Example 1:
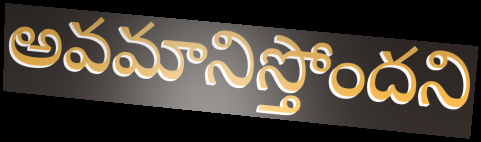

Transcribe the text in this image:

అవమానిస్తోందని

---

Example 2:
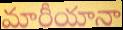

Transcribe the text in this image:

మారీయానా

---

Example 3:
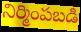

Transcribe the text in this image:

నిర్మింపబడి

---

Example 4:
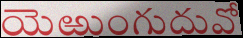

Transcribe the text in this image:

యెఱుంగుదువో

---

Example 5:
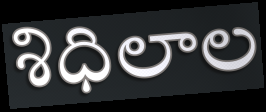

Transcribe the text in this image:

శిధిలాల